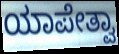
ಯಾಪೇತ್ವಾ